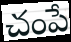
చంపే